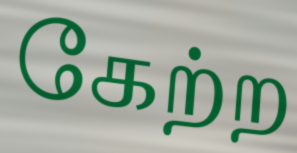
கேற்ற